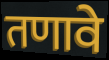
तणावे